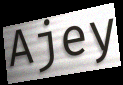
Ajey